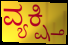
ವ್ಯಕ್ಷ್ತಿ